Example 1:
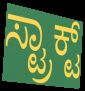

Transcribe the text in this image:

ಸ್ಟ್ರಾಕ್ಟ್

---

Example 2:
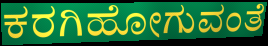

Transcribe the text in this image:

ಕರಗಿಹೋಗುವಂತೆ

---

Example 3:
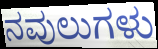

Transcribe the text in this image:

ನವುಲುಗಳು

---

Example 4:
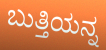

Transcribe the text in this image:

ಬುತ್ತಿಯನ್ನ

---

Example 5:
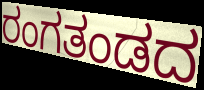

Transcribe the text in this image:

ರಂಗತಂಡದ